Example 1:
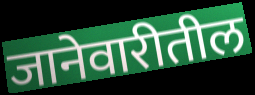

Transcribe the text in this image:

जानेवारीतील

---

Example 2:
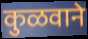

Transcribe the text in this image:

कुळवाने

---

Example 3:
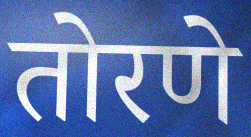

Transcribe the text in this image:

तोरणे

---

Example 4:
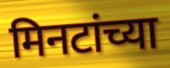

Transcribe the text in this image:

मिनटांच्या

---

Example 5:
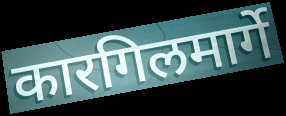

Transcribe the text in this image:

कारगिलमार्गे